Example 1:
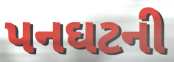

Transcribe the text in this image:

પનઘટની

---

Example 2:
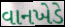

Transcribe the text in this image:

વાનખેડે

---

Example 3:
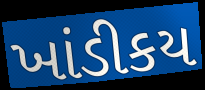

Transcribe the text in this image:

ખાંડીકય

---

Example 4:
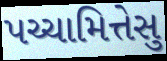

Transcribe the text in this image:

પચ્ચામિત્તેસુ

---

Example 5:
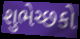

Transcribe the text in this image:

શુભેચ્છકો